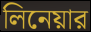
লিনেয়ার